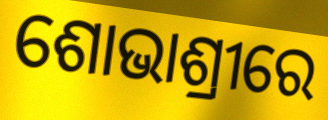
ଶୋଭାଶ୍ରୀରେ